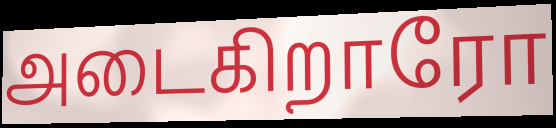
அடைகிறாரோ